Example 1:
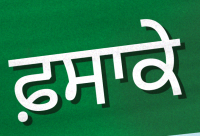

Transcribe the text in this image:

ਫ਼ਸਾਕੇ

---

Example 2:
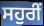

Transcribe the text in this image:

ਸਹੁਰੀਂ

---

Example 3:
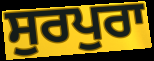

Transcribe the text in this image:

ਸੁਰਪੁਰਾ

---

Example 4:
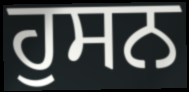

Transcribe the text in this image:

ਹੁਸਨ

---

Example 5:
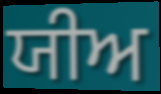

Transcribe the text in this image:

ਯੀਅ